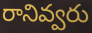
రానివ్వరు